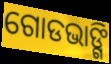
ଗୋଡଭାଙ୍ଗି